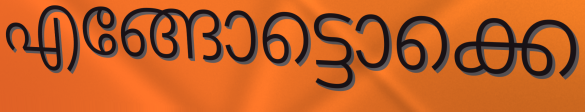
എങ്ങോട്ടൊക്കെ